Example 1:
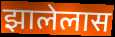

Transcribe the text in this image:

झालेलास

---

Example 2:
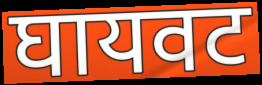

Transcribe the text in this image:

घायवट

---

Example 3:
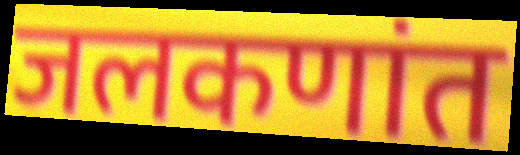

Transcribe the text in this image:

जलकणांत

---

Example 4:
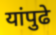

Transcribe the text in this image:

यांपुढे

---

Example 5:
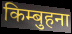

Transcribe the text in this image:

किम्बुहना